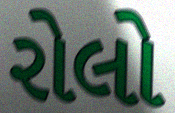
રોલો